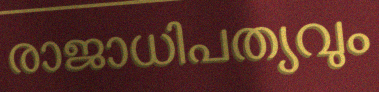
രാജാധിപത്യവും